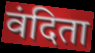
वंदिता